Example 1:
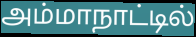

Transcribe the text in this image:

அம்மாநாட்டில்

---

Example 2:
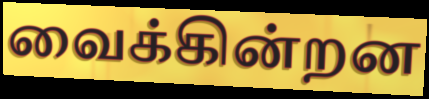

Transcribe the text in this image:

வைக்கின்றன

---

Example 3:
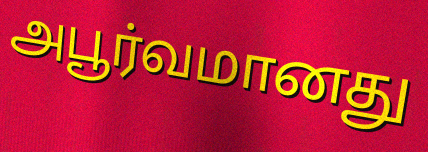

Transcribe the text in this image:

அபூர்வமானது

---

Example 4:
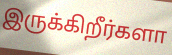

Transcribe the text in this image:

இருக்கிறீர்களா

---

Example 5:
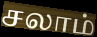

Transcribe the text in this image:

சலாம்